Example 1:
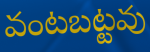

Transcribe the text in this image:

వంటబట్టవు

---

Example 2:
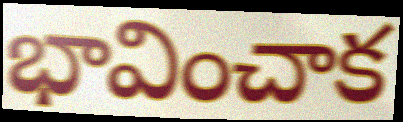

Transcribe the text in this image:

భావించాక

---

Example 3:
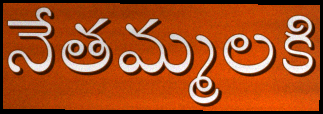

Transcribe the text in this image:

నేతమ్మలకి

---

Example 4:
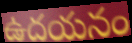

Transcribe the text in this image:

ఉదయనం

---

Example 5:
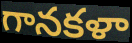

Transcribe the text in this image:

గానకళా